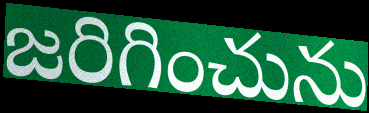
జరిగించును